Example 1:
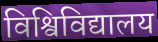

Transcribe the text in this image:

विश्विविद्यालय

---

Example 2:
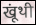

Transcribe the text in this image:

खूंथी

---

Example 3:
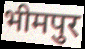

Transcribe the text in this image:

भीमपुर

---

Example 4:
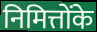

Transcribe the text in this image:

निमित्तोंके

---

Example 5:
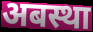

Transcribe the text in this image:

अबस्था